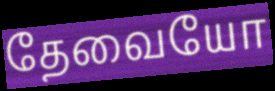
தேவையோ